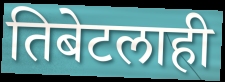
तिबेटलाही